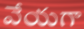
వేయగా